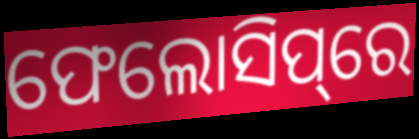
ଫେଲୋସିପ୍‌ରେ